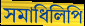
সমাধিলিপি